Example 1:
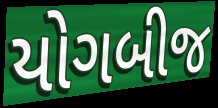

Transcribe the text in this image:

યોગબીજ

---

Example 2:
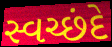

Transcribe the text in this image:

સ્વચ્છંદે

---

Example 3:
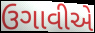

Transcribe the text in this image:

ઉગાવીએ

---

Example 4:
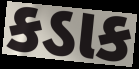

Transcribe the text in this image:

કડાક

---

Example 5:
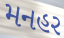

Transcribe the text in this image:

મનહર